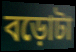
বড়োটা